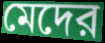
মেদের